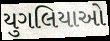
યુગલિયાઓ